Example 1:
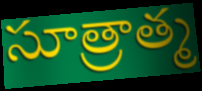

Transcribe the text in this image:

సూత్రాత్మ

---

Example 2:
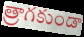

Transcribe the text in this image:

త్రాగకుండా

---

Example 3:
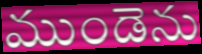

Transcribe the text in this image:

ముండెను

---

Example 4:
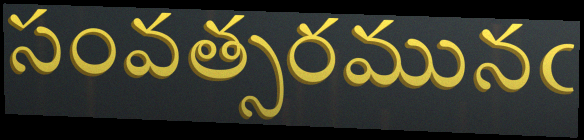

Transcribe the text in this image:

సంవత్సరమునఁ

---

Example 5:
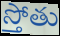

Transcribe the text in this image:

స్తోతు